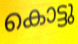
കൊട്ടു